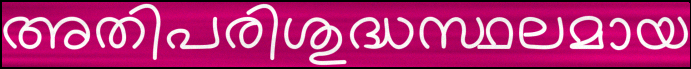
അതിപരിശുദ്ധസ്ഥലമായ